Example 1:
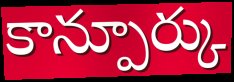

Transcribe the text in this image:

కాన్పూర్కు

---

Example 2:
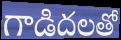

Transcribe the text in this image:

గాడిదలతో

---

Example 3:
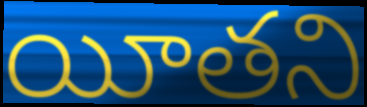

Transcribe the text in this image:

యీతని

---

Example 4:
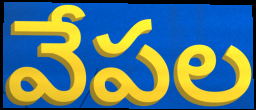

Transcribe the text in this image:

వేపల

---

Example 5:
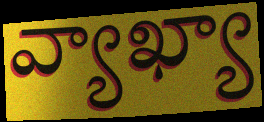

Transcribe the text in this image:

వ్యాఖ్యా